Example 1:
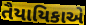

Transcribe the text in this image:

તૈયાયિકાએ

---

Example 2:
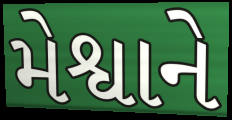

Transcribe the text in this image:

મેશ્વાને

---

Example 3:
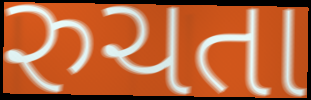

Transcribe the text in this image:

રુચતા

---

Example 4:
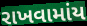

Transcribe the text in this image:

રાખવામાંય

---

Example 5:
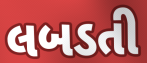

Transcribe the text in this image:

લબડતી